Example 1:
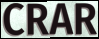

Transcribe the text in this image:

CRAR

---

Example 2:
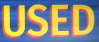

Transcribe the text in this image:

USED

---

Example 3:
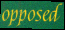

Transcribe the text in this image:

opposed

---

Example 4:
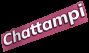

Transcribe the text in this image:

Chattampi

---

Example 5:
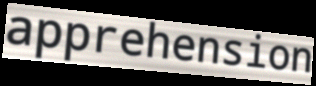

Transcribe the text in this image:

apprehension